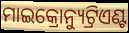
ମାଇକ୍ରୋନ୍ୟୁଟ୍ରିଏଣ୍ଟ